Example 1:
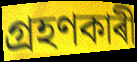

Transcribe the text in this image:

গ্ৰহণকাৰী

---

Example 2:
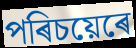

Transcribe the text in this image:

পৰিচয়েৰে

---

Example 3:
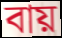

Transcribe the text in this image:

বায়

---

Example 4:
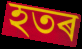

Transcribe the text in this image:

হতৰ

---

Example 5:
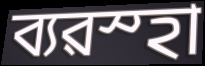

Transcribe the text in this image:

ব্যৱস্হা